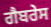
ਗੈਬਰੇਸ